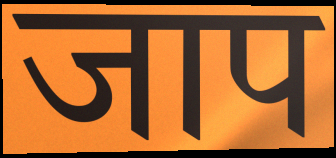
जाप